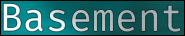
Basement